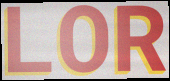
LOR